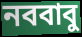
নববাবু